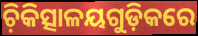
ଚ଼ିକିତ୍ସାଳୟଗୁଡ଼ିକରେ